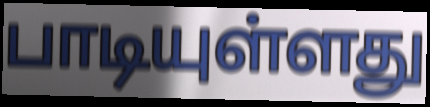
பாடியுள்ளது